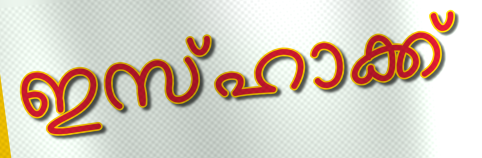
ഇസ്ഹാക്ക്